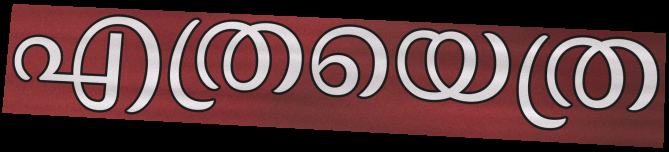
എത്രയെത്ര